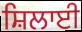
ਸ਼ਿਲਾਈ